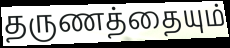
தருணத்தையும்